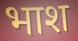
भाश